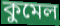
কুমেল